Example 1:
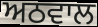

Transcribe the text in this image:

ਅਠਵਾਲ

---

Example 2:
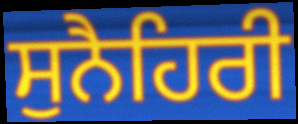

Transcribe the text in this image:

ਸੁਨੈਹਿਰੀ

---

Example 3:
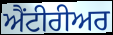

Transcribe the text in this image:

ਐਂਟੀਰੀਅਰ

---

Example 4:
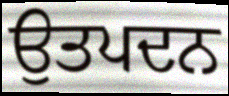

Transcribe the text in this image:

ਉਤਪਦਨ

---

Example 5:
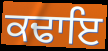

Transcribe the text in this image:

ਕਢਾਇ